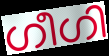
ഗീഗി